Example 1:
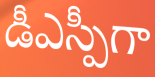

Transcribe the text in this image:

డీఎస్పీగా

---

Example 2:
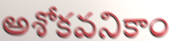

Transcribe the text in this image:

అశోకవనికాం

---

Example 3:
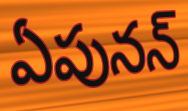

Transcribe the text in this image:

ఏపునన్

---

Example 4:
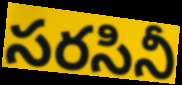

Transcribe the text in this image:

సరసినీ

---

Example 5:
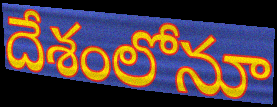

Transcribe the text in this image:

దేశంలోనూ